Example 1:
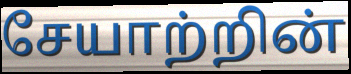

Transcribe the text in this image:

சேயாற்றின்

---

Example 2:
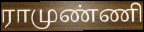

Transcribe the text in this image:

ராமுண்ணி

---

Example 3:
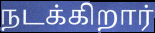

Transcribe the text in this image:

நடக்கிறார்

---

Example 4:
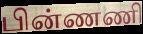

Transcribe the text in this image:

பின்ணணி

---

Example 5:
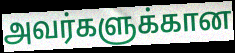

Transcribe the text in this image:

அவர்களுக்கான